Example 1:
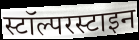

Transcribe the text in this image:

स्टॉल्परस्टाइन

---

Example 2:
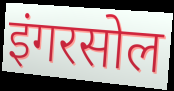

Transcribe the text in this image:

इंगरसोल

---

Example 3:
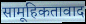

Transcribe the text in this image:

सामूहिकतावाद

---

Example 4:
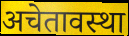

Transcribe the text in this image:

अचेतावस्था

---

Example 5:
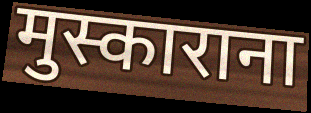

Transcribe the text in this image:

मुस्काराना